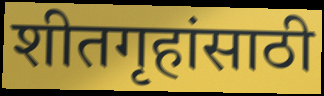
शीतगृहांसाठी